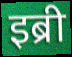
इब्री